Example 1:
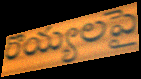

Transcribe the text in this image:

రొయ్యలపై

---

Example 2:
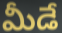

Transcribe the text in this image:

మీడే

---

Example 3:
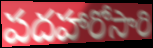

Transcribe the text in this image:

పదహారోసారి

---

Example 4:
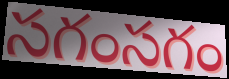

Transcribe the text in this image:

సగంసగం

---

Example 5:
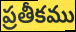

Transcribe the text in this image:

ప్రతీకము